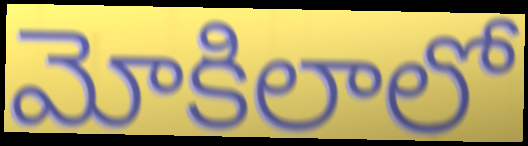
మోకిలాలో